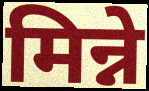
मिन्ने